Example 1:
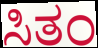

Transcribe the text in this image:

ಸಿತಂ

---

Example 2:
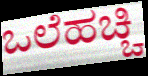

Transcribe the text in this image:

ಒಲೆಹಚ್ಚಿ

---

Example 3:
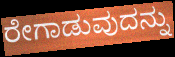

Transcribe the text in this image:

ರೇಗಾಡುವುದನ್ನು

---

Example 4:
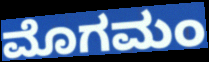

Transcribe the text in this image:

ಮೊಗಮಂ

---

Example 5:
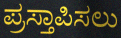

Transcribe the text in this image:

ಪ್ರಸ್ತಾಪಿಸಲು